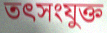
তৎসংযুক্ত